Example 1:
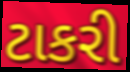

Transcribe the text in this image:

ટાકરી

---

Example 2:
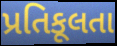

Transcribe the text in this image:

પ્રતિકૂલતા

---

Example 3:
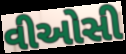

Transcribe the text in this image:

વીઓસી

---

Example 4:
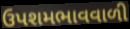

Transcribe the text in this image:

ઉપશમભાવવાળી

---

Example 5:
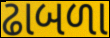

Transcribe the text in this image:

ઢાબળા